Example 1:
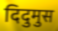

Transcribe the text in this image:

दिदुमुस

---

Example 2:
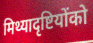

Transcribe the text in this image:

मिथ्यादृष्टियोंको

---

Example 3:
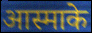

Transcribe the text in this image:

आस्माके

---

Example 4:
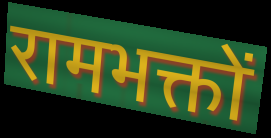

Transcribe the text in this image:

रामभक्तों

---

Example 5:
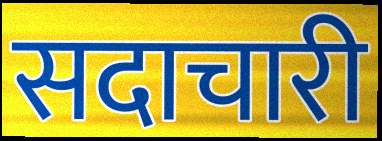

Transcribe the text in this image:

सदाचारी